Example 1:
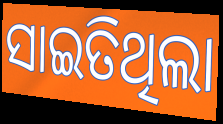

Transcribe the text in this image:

ସାଇତିଥିଲା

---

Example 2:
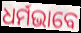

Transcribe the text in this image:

ଧର୍ମଭାବେ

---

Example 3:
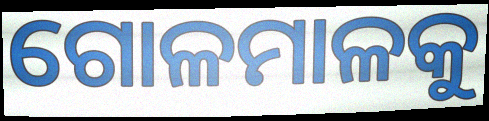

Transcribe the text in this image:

ଗୋଳମାଳକୁ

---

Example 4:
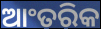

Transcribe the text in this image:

ଆଂତରିକ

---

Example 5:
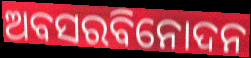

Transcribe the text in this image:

ଅବସରବିନୋଦନ